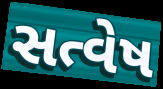
સત્વેષ